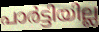
പാർട്ടിയില്ല